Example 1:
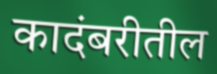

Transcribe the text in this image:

कादंबरीतील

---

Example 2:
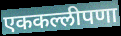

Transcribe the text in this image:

एककल्लीपणा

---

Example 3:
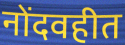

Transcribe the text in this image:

नोंदवहीत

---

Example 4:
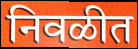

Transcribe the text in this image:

निवळीत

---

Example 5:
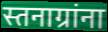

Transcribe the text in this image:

स्तनाग्रांना